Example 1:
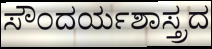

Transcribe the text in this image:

ಸೌಂದರ್ಯಶಾಸ್ತ್ರದ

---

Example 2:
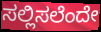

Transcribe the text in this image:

ಸಲ್ಲಿಸಲೆಂದೇ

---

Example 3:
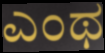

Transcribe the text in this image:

ಎಂಥ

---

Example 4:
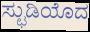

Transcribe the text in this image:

ಸ್ಟುಡಿಯೊದ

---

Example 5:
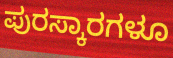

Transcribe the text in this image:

ಪುರಸ್ಕಾರಗಳೂ